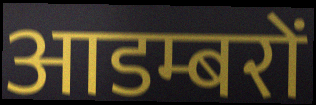
आडम्बरों